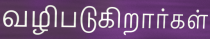
வழிபடுகிறார்கள்